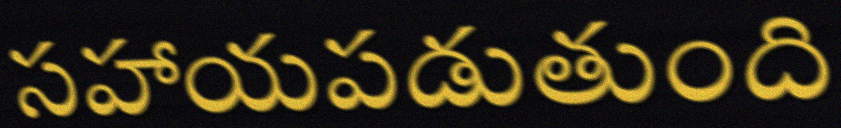
సహాయపడుతుంది